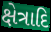
ક્ષેત્રાદિ